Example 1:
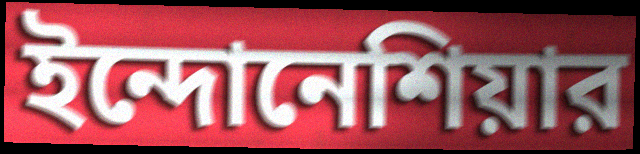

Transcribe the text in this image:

ইন্দোনেশিয়ার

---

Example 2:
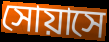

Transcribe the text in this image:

সোয়াসে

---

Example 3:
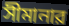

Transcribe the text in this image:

সীমানার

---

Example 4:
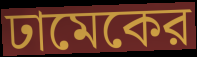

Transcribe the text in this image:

ঢামেকের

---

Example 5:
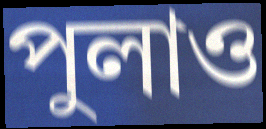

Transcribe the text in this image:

পুলাও